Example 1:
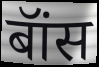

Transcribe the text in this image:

बॉंस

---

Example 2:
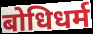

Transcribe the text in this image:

बोधिधर्म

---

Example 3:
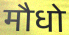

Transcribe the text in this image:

मौधो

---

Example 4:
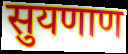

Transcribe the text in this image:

सुयणाण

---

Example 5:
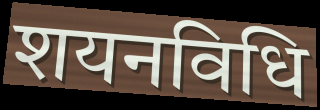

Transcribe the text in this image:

शयनविधि